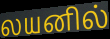
லயனில்